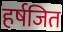
हर्षजित